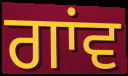
ਗਾਂਵ